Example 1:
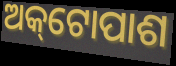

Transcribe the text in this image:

ଅକ୍‌ଟୋପାଶ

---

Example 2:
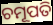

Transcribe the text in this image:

ଚମୂପତି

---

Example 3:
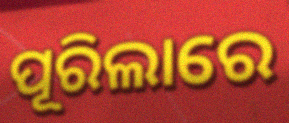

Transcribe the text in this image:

ପୂରିଲାରେ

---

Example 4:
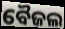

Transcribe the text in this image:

ବୈଜଲ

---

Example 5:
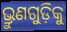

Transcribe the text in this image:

ଭ୍ରୁଣଗୁଡ଼ିକୁ